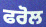
ਫਰੋਲ